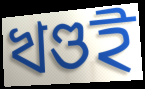
খণ্ডই